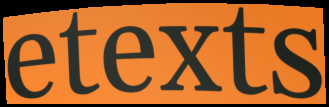
etexts